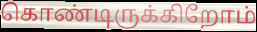
கொண்டிருக்கிறோம்